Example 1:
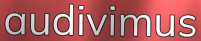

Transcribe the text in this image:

audivimus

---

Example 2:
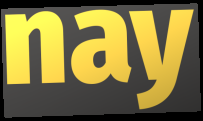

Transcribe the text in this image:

nay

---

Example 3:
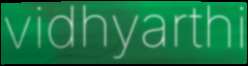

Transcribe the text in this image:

vidhyarthi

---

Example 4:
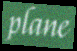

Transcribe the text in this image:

plane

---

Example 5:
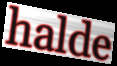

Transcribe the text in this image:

halde